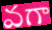
వగా